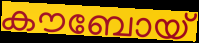
കൗബോയ്